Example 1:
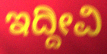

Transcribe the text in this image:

ಇದ್ದೀವಿ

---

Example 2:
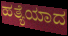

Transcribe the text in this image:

ಹತ್ಯೆಯಾದ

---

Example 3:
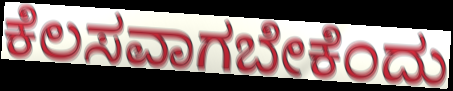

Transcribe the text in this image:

ಕೆಲಸವಾಗಬೇಕೆಂದು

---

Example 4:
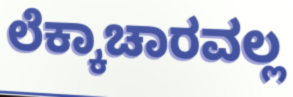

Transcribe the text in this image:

ಲೆಕ್ಕಾಚಾರವಲ್ಲ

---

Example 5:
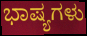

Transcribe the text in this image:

ಭಾಷ್ಯಗಳು